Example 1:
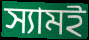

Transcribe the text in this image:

স্যামই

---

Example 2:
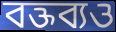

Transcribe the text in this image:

বক্তব্যও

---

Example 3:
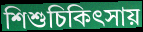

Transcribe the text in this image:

শিশুচিকিৎসায়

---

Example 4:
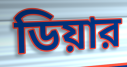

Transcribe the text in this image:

ডিয়ার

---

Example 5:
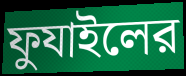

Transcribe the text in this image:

ফুযাইলের